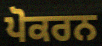
ਪੋਕਰਨ